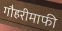
गौहरीमाफी